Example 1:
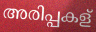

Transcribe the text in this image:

അരിപ്പകള്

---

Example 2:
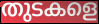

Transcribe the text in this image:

തുടകളെ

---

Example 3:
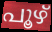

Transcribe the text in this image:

പൂഴ്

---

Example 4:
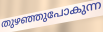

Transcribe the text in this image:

തുഴഞ്ഞുപോകുന്ന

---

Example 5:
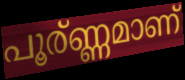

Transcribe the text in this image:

പൂര്ണ്ണമാണ്